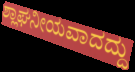
ಶ್ಲಾಘನೀಯವಾದದ್ದು